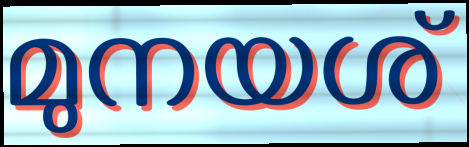
മുനയശ്